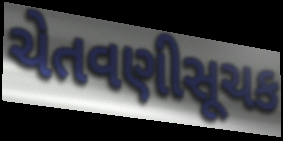
ચેતવણીસૂચક